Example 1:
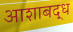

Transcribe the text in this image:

आशाबद्ध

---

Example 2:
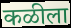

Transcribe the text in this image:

कळीला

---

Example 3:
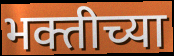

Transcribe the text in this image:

भक्‍तीच्या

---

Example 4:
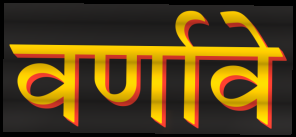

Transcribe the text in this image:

वर्णावे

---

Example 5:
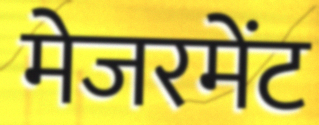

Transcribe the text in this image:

मेजरमेंट